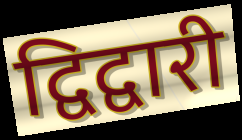
द्विद्वारी